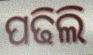
ପଢିଲି